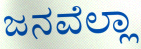
ಜನವೆಲ್ಲಾ